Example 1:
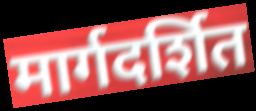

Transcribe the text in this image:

मार्गदर्शित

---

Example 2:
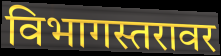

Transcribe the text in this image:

विभागस्तरावर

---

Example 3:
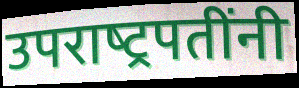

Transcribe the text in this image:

उपराष्ट्रपतींनी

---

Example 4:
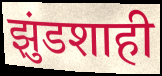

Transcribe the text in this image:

झुंडशाही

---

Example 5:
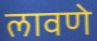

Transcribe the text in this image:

लावणे